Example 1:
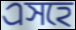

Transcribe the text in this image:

এসহে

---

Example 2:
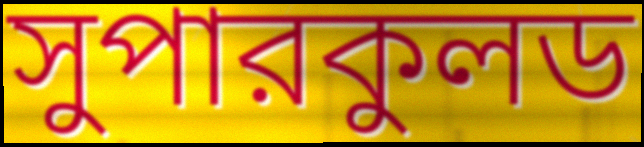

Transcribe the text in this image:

সুপারকুলড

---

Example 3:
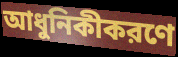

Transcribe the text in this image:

আধুনিকীকরণে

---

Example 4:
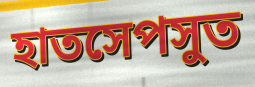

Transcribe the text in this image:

হাতসেপসুত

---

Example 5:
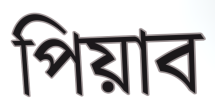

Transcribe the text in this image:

পিয়াব